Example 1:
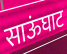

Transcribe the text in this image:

साऊंघाट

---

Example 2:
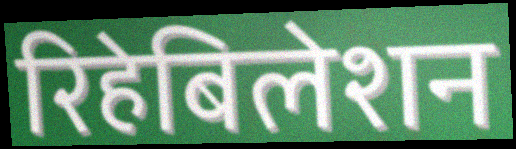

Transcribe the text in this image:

रिहेबिलेशन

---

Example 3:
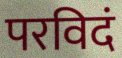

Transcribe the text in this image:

परविदं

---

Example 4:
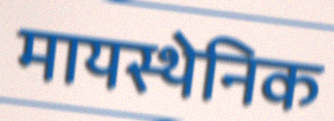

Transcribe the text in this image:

मायस्थेनिक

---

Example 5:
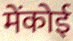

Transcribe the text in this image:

मेंकोई